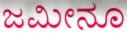
ಜಮೀನೂ